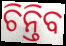
ଚିନ୍ତିବ